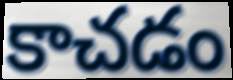
కాచడం